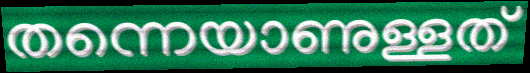
തന്നെയാണുള്ളത്